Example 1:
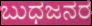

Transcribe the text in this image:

ಬುಧಜನರ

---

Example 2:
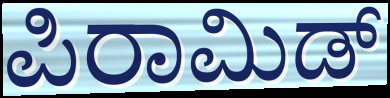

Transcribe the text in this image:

ಪಿರಾಮಿಡ್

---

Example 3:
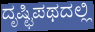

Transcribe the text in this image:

ದೃಷ್ಟಿಪಥದಲ್ಲಿ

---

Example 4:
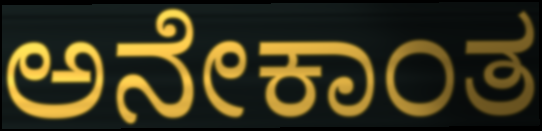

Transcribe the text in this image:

ಅನೇಕಾಂತ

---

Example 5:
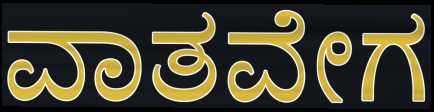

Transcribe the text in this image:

ವಾತವೇಗ